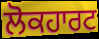
ਲੋਕਹਾਰਟ